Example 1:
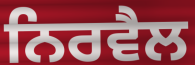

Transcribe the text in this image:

ਨਿਰਵੈਲ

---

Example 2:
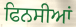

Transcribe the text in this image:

ਫਿਨਸੀਆਂ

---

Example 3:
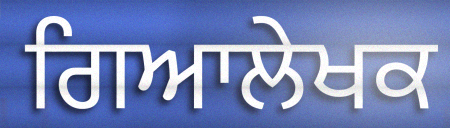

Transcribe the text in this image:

ਗਿਆਲੇਖਕ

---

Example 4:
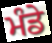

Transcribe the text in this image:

ਮੰਡੇ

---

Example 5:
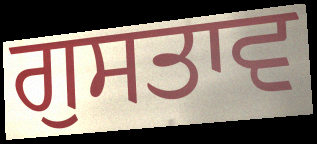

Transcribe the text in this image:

ਗੁਸਤਾਵ